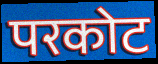
परकोट